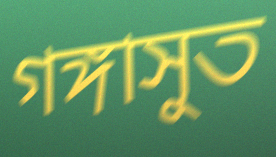
গঙ্গাসুত